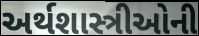
અર્થશાસ્ત્રીઓની